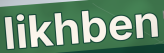
likhben